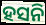
ହସନି